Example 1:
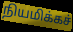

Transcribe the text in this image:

நியமிக்கச்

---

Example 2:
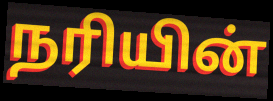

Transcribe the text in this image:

நரியின்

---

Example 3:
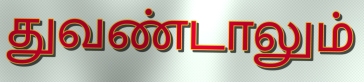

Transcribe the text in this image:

துவண்டாலும்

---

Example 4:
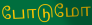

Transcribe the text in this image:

போடுமோ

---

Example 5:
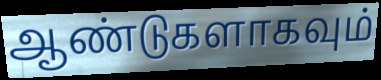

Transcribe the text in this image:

ஆண்டுகளாகவும்